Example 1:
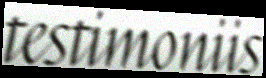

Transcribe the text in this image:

testimoniis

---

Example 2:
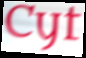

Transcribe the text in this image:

Cyt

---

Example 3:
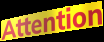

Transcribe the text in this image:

Attention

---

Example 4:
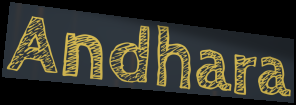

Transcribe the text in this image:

Andhara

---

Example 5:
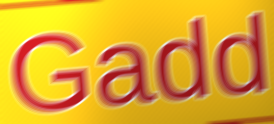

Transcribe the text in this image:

Gadd